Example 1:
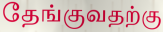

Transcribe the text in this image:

தேங்குவதற்கு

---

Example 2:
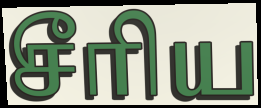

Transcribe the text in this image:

சீரிய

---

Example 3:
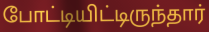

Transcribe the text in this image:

போட்டியிட்டிருந்தார்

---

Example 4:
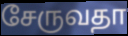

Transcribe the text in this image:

சேருவதா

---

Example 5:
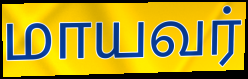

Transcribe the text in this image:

மாயவர்